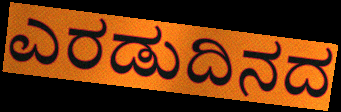
ಎರಡುದಿನದ